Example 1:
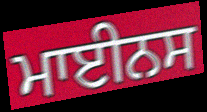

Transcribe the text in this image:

ਮਾਈਨਸ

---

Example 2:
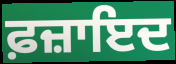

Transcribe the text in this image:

ਫ਼ਜ਼ਾਇਦ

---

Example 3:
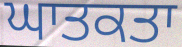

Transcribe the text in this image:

ਘਾਤਕਤਾ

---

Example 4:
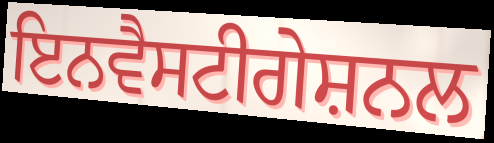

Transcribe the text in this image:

ਇਨਵੈਸਟੀਗੇਸ਼ਨਲ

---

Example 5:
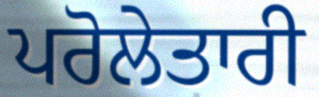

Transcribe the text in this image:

ਪਰੋਲੇਤਾਰੀ